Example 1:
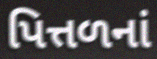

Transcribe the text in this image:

પિત્તળનાં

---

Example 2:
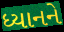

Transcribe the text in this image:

ધ્યાનને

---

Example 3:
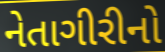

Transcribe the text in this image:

નેતાગીરીનો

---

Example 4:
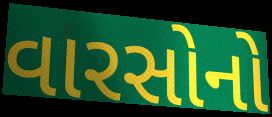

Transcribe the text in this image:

વારસોનો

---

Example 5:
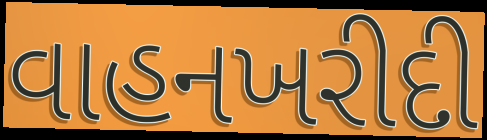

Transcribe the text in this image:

વાહનખરીદી